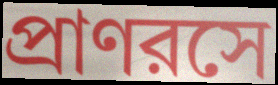
প্রাণরসে